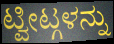
ಟ್ವೀಟ್ಗಳನ್ನು